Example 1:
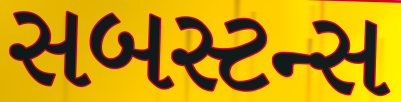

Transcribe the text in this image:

સબસ્ટન્સ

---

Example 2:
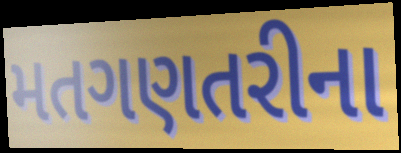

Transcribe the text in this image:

મતગણતરીના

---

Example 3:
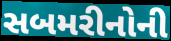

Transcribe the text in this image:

સબમરીનોની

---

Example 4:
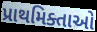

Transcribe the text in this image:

પ્રાથમિક્તાઓ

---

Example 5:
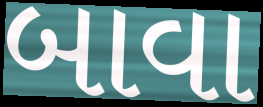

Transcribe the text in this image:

બાવા